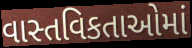
વાસ્તવિકતાઓમાં